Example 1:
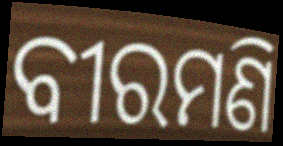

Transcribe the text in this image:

ବୀରମଣି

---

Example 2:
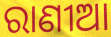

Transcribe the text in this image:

ରାଣୀଆ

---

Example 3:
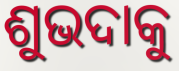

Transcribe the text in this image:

ଶୁଭଦାକୁ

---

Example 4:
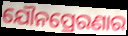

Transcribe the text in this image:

ଯୌନପ୍ରେରଣାର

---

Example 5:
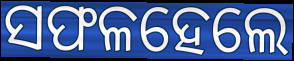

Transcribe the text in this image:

ସଫଳହେଲେ